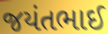
જયંતભાઈ